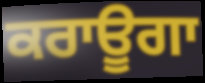
ਕਰਾਊਗਾ